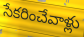
సేకరించేవాళ్లు